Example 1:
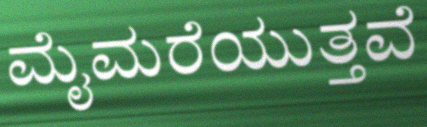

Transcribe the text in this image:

ಮೈಮರೆಯುತ್ತವೆ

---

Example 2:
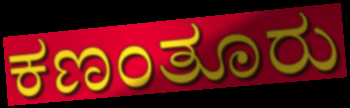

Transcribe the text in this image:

ಕಣಂತೂರು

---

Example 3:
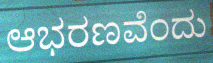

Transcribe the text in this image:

ಆಭರಣವೆಂದು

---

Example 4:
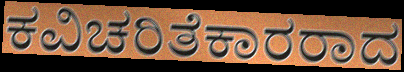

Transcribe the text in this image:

ಕವಿಚರಿತೆಕಾರರಾದ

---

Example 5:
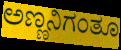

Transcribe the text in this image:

ಅಣ್ಣನಿಗಂತೂ